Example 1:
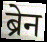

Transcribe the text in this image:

ब्रेन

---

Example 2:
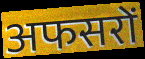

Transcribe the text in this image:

अफसरों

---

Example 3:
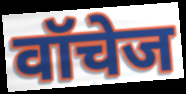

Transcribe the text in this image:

वॉचेज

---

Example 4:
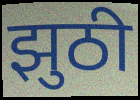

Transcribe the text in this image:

झुठी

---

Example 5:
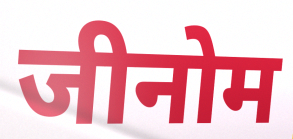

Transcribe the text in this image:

जीनोम